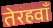
तेरहवाँ